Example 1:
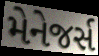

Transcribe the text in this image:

મેનેજર્સ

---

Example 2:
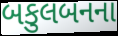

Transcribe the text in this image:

બકુલબનના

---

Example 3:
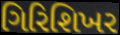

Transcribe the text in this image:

ગિરિશિખર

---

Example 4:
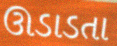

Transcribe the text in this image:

ઊડાડતા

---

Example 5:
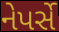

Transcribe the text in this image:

નેપર્સે